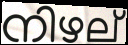
നിഴല്